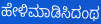
ಹೇಳಿಮಾಡಿಸಿದಂಥ